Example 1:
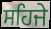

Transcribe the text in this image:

ਸਹਿਜੇ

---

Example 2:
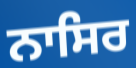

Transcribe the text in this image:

ਨਾਸਿਰ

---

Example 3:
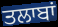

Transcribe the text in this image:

ਤਲਾਬਾਂ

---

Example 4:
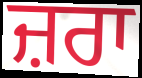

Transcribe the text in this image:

ਜ਼ਰਾ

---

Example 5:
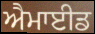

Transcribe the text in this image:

ਐਮਾਈਡ